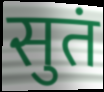
सुतं